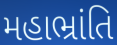
મહાભ્રાંતિ